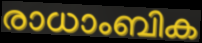
രാധാംബിക